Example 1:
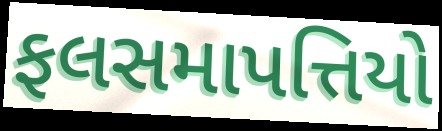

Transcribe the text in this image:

ફલસમાપત્તિયો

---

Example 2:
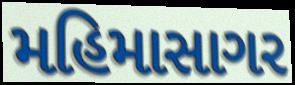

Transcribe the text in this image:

મહિમાસાગર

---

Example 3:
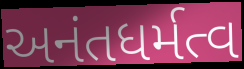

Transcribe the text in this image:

અનંતધર્મત્વ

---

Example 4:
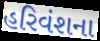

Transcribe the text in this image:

હરિવંશના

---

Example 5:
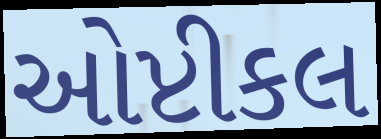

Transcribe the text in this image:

ઓપ્ટીકલ